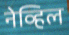
नेव्हिल